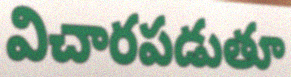
విచారపడుతూ